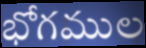
భోగముల